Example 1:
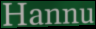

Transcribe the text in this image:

Hannu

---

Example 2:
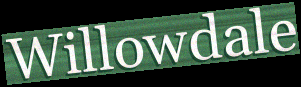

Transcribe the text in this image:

Willowdale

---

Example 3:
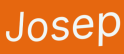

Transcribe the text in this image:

Josep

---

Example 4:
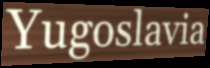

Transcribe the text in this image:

Yugoslavia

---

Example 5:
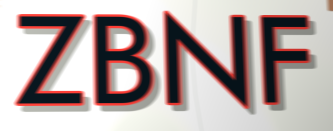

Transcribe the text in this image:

ZBNF